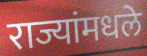
राज्यांमधले